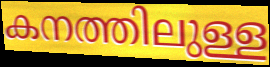
കനത്തിലുള്ള